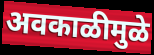
अवकाळीमुळे